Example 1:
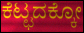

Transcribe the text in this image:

ಕೆಟ್ಟದಕ್ಕೋ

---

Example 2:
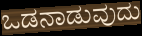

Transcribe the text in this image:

ಒಡನಾಡುವುದು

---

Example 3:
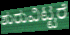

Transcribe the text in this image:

ಶುರುವಿಟ್ಟರೆ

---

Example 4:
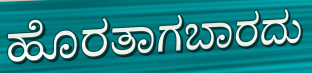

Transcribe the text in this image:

ಹೊರತಾಗಬಾರದು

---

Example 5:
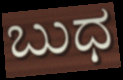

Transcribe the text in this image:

ಬುಧ